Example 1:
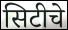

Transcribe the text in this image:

सिटीचे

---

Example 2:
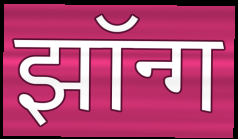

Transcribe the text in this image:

झॉन्ग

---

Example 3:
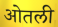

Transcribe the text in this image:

ओतली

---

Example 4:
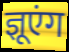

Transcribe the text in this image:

ज्ञूएंग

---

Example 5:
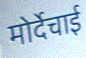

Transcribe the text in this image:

मोर्देचाई